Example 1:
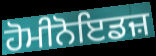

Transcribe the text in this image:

ਹੋਮੀਨੋਇਡਜ਼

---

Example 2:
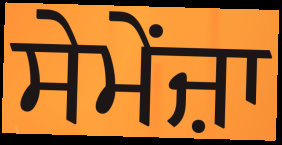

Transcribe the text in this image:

ਸੇਮੇਂਜ਼ਾ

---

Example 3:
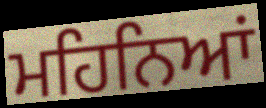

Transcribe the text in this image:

ਮਹਿਨਿਆਂ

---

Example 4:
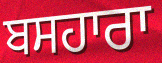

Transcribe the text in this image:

ਬਸਹਾਰਾ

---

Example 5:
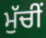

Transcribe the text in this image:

ਮੁੱਚੀਂ